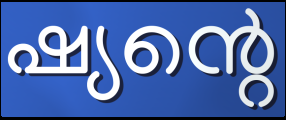
ഷ്യന്റെ